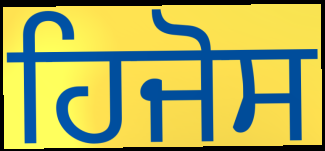
ਹਿਜੋਸ